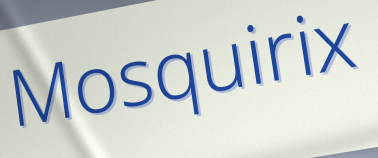
Mosquirix